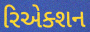
રિએક્શન